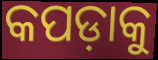
କପଡ଼ାକୁ